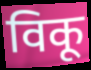
विकू